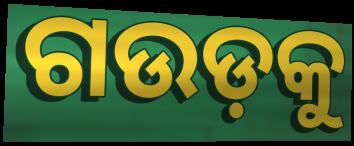
ଗଉଡ଼କୁ